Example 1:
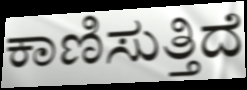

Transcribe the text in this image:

ಕಾಣಿಸುತ್ತಿದೆ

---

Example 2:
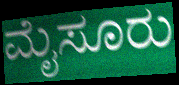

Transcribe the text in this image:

ಮೈಸೂರು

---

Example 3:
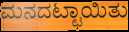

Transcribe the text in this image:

ಮನದಟ್ಟಾಯಿತು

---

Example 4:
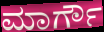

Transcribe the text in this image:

ಮಾರ್ಗೌ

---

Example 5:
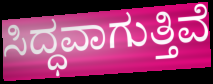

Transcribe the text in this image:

ಸಿದ್ಧವಾಗುತ್ತಿವೆ